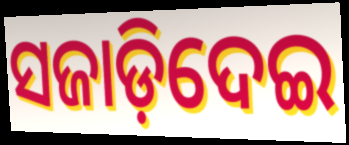
ସଜାଡ଼ିଦେଇ